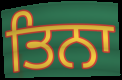
ਤਿਨਾ